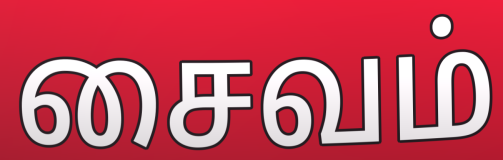
சைவம்